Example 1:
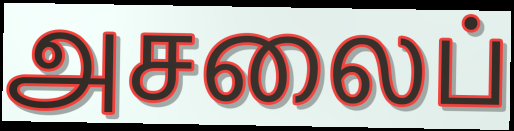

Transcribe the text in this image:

அசலைப்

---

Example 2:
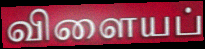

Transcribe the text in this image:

விளையப்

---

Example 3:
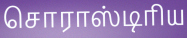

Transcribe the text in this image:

சொராஸ்டிரிய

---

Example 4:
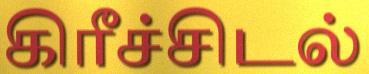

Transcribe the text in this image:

கிரீச்சிடல்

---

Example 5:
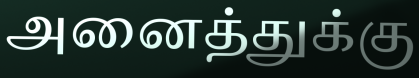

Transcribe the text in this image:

அனைத்துக்கு